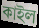
কাইল